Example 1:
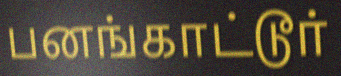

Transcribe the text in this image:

பனங்காட்டூர்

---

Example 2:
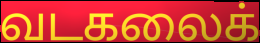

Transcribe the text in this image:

வடகலைக்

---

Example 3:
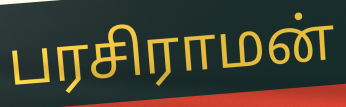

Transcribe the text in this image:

பரசிராமன்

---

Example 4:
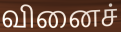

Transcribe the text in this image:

வினைச்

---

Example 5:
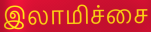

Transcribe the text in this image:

இலாமிச்சை